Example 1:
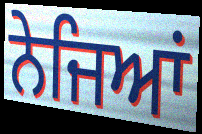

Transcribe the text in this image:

ਨੇਜਿਆਂ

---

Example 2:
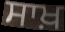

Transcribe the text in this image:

ਸਾਖ਼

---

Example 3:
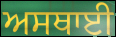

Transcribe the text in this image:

ਅਸਥਾਈ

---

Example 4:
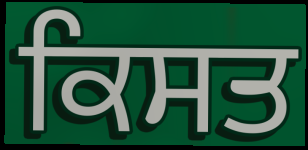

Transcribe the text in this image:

ਕਿਸਤ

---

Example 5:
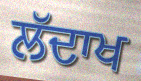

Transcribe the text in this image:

ਲੱਦਾਖ